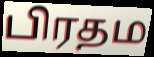
பிரதம